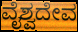
ವೈಶ್ವದೇವ